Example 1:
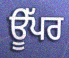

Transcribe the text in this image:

ਊੱਪਰ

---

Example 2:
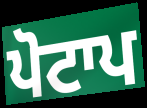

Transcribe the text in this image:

ਪੋਟਾਪ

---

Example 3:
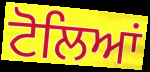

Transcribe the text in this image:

ਟੋਲਿਆਂ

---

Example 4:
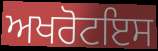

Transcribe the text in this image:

ਅਖਰੋਟਇਸ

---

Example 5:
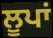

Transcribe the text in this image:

ਲੂਪਾਂ